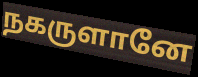
நகருளானே